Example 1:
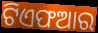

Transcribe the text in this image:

ଟିଏଫଆର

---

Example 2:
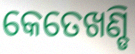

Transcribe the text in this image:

କେତେଖଣ୍ଡି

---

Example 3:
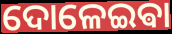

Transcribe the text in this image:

ଦୋଳେଇଵା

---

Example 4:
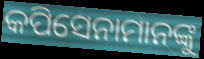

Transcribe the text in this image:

କପିସେନାମାନଙ୍କୁ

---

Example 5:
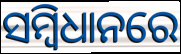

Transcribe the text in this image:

ସମ୍ବିଧାନରେ